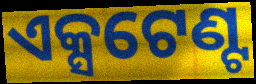
ଏକ୍ସଟେଣ୍ଟ